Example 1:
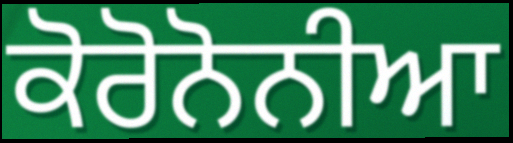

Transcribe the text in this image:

ਕੋਰੋਨੋਨੀਆ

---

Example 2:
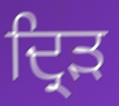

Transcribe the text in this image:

ਦ੍ਰਿੜ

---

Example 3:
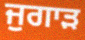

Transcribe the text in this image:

ਜੁਗਾੜ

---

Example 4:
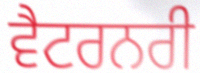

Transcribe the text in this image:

ਵੈਟਰਨਰੀ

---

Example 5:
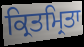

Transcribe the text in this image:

ਕ੍ਰਿਤਮ੍ਰਿਤਾ